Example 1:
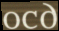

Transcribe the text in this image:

ocd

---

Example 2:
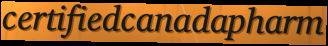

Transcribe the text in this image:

certifiedcanadapharm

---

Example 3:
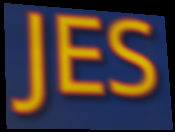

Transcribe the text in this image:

JES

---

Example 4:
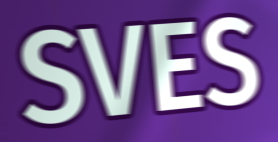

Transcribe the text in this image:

SVES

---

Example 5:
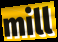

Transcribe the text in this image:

mill